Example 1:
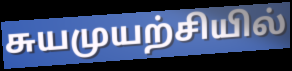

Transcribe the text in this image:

சுயமுயற்சியில்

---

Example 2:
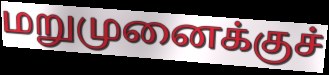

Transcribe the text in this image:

மறுமுனைக்குச்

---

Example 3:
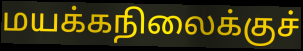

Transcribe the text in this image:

மயக்கநிலைக்குச்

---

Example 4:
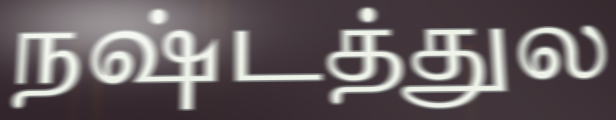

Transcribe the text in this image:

நஷ்டத்துல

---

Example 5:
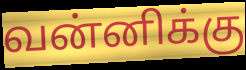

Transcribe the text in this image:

வன்னிக்கு